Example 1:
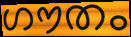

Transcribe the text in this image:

ഗൗതം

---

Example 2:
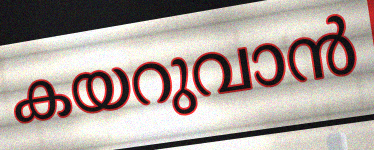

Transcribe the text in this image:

കയറുവാൻ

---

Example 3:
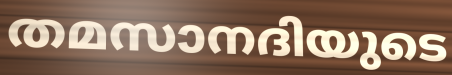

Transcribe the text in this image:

തമസാനദിയുടെ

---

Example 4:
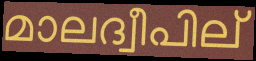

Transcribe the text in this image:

മാലദ്വീപില്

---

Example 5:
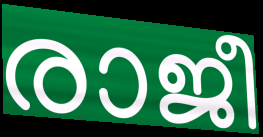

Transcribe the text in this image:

രാജീ